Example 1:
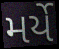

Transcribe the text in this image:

મર્યે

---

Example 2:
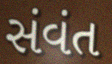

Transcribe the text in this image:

સંવંત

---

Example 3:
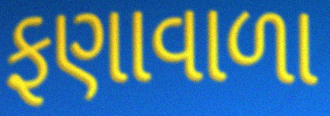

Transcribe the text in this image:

ફણાવાળા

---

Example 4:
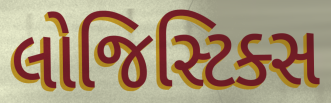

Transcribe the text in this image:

લોજિસ્ટિક્સ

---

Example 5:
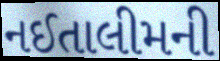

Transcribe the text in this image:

નઈતાલીમની